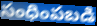
సంధింపబడి